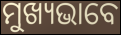
ମୁଖ୍ୟଭାବେ